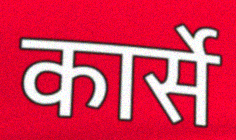
कार्से